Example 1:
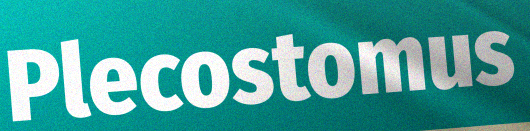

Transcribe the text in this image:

Plecostomus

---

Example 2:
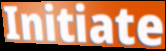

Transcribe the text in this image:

Initiate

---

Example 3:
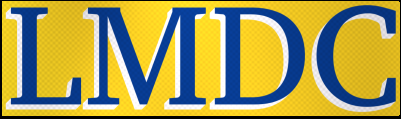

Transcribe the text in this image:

LMDC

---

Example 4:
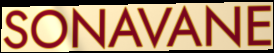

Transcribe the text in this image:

SONAVANE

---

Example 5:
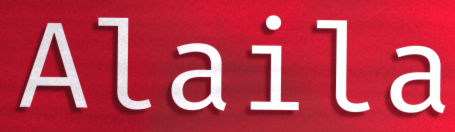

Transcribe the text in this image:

Alaila